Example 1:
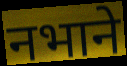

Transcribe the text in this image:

नभाने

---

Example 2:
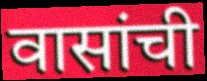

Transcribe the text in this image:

वासांची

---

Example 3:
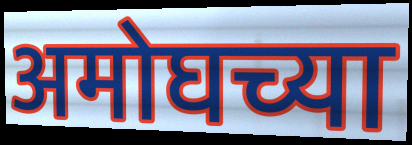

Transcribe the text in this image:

अमोघच्या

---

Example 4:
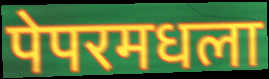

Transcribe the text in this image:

पेपरमधला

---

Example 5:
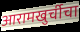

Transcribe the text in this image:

आरामखुर्चीचा